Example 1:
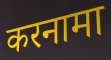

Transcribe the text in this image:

करनामा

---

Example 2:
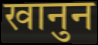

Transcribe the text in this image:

खानुन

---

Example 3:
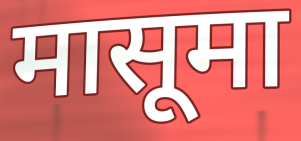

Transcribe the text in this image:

मासूमा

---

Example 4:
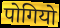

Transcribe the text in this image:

पोगियो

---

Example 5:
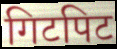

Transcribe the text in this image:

गिटपिट